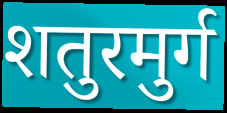
शतुरमुर्ग